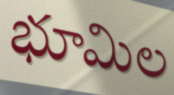
భూమిల